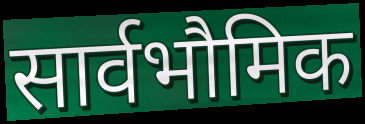
सार्वभौमिक